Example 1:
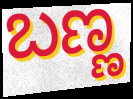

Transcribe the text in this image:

ಬಣ್ಣ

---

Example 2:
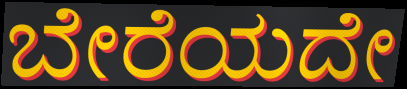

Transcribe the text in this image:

ಬೇರೆಯದೇ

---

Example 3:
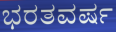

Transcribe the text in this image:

ಭರತವರ್ಷ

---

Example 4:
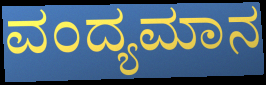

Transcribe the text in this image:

ವಂದ್ಯಮಾನ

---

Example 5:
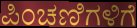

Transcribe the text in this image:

ಪಿಂಚಣಿಗಳಿಗೆ